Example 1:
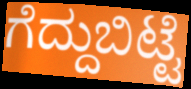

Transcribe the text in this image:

ಗೆದ್ದುಬಿಟ್ಟೆ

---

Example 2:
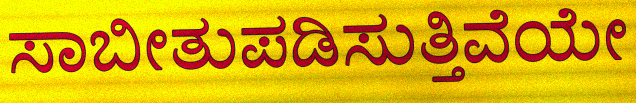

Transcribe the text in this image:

ಸಾಬೀತುಪಡಿಸುತ್ತಿವೆಯೇ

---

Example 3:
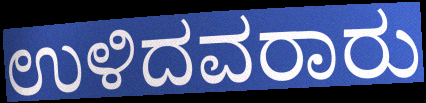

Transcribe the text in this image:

ಉಳಿದವರಾರು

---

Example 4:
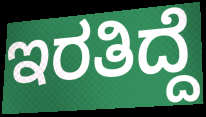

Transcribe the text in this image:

ಇರತಿದ್ದೆ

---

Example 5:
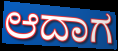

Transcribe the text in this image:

ಆದಾಗ